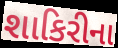
શાકિરીના